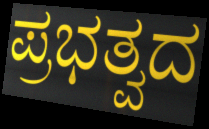
ಪ್ರಭತ್ವದ